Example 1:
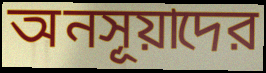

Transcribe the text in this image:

অনসূয়াদের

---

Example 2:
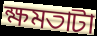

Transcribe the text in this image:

ক্ষমতাটা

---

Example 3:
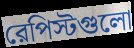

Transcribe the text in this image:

রেপিস্টগুলো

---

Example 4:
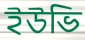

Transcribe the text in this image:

ইউভি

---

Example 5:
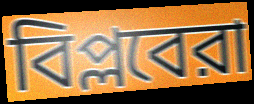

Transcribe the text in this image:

বিপ্লবেরা